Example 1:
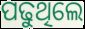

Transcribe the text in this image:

ପଢୁଥିଲେ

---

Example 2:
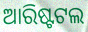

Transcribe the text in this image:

ଆରିଷ୍ଟଟଲ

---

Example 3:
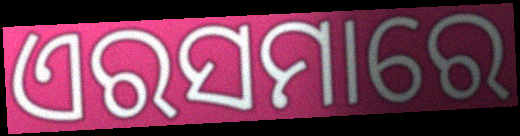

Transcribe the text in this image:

ଏରସମାରେ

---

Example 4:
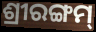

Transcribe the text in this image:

ଶ୍ରୀରଙ୍ଗମ୍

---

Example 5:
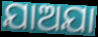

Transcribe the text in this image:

ଯାଅଯା